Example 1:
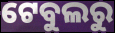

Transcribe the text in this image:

ଟେବୁଲରୁ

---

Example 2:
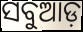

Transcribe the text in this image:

ସବୁଆଡ଼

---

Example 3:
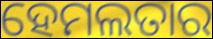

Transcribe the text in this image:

ହେମଲତାର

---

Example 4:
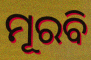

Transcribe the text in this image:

ମୂରବି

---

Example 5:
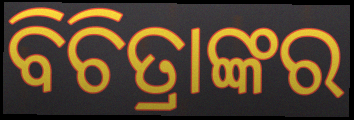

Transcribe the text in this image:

ବିଚିତ୍ରାଙ୍କର